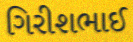
ગિરીશભાઈ